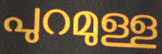
പുറമുള്ള